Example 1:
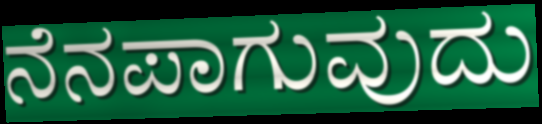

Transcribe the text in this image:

ನೆನಪಾಗುವುದು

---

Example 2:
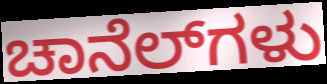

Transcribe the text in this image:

ಚಾನೆಲ್‌ಗಳು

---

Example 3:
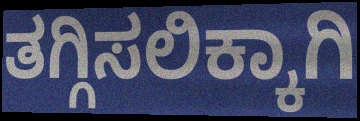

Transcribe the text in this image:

ತಗ್ಗಿಸಲಿಕ್ಕಾಗಿ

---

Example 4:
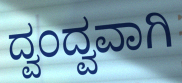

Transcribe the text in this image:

ದ್ವಂದ್ವವಾಗಿ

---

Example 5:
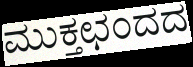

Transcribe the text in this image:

ಮುಕ್ತಛಂದದ